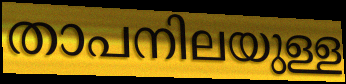
താപനിലയുള്ള